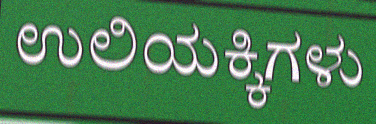
ಉಲಿಯಕ್ಕಿಗಳು